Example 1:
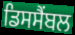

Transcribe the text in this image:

ਡਿਸਸੈਂਬਲ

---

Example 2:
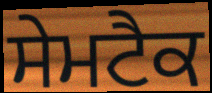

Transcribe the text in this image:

ਸੇਮਟੈਕ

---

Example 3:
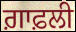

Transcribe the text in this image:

ਗ਼ਾਫ਼ਲੀ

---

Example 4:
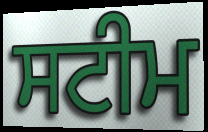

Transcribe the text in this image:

ਸਟੀਮ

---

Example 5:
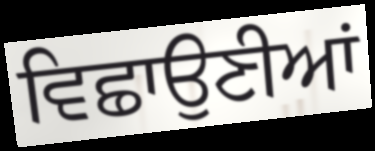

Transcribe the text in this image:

ਵਿਛਾਉਣੀਆਂ